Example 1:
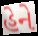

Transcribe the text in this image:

હેને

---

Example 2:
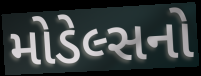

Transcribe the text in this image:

મોડેલ્સનો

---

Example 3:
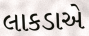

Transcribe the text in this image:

લાકડાએ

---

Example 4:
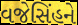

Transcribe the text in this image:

વજેસિંહને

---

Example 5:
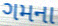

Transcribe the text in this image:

ગમના